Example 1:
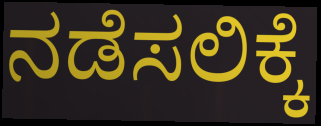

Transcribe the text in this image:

ನಡೆಸಲಿಕ್ಕೆ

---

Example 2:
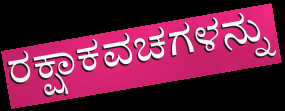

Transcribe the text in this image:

ರಕ್ಷಾಕವಚಗಳನ್ನು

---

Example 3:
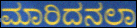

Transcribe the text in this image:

ಮಾರಿದನಲಾ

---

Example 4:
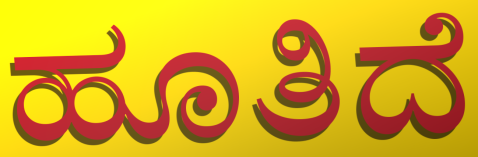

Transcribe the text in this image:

ಹೂತಿದೆ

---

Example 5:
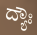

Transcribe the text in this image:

ದ್ಯೌಃ